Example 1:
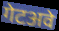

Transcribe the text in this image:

गेटअवे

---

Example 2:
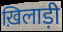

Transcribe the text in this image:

ख़िलाड़ी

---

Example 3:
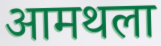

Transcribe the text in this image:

आमथला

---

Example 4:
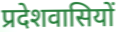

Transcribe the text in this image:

प्रदेशवासियों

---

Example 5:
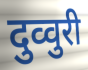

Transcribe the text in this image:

दुव्वुरी